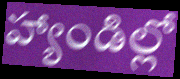
హ్యాండిల్లో